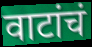
वाटांचं